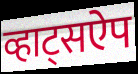
व्‍हाट्सऐप